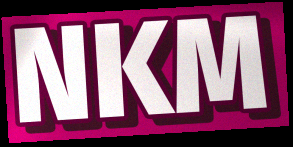
NKM